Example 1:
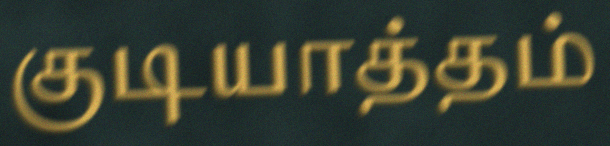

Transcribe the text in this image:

குடியாத்தம்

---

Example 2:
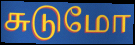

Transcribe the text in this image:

சுடுமோ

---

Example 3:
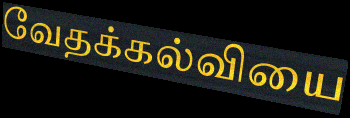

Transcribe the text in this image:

வேதக்கல்வியை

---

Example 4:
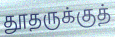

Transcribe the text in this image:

தூதருக்குத்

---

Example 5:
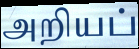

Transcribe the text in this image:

அறியப்